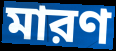
মারণ